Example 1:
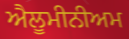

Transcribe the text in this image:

ਐਲੂਮੀਨੀਅਮ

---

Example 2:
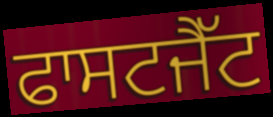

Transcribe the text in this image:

ਫਾਸਟਜੈੱਟ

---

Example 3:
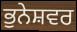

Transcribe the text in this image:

ਭੁਨੇਸ਼ਵਰ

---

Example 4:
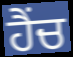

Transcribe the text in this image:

ਹੈਂਚ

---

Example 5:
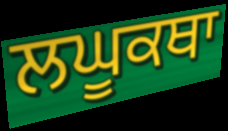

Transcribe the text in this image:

ਲਘੂਕਥਾ